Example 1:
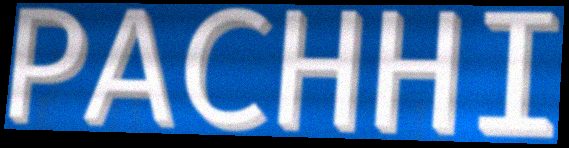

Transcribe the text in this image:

PACHHI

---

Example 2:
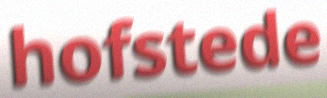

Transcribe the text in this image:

hofstede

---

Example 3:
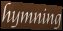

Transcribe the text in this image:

hymning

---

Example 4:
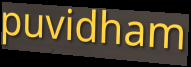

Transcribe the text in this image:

puvidham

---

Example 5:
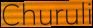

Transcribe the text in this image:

Churuli